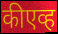
कीएव्ह